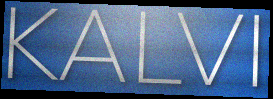
KALVI